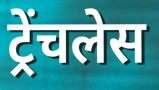
ट्रेंचलेस